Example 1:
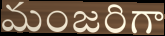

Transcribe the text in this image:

మంజరిగా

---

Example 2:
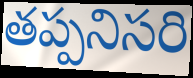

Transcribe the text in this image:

తప్పనిసరి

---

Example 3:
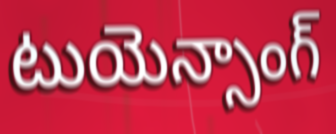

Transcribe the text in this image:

టుయెన్సాంగ్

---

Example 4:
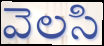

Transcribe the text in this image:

వెలసి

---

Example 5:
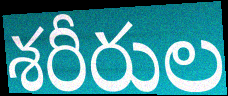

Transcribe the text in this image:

శరీరుల